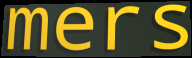
mers